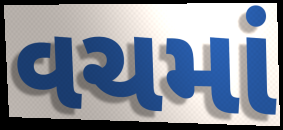
વચમાં